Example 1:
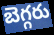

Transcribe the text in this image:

బెగ్గరు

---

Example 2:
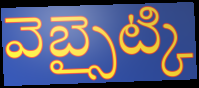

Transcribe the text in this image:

వెబ్సైట్కి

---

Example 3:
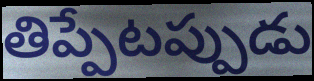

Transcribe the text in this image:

తిప్పేటప్పుడు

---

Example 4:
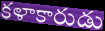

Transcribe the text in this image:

కళాకారుడు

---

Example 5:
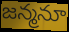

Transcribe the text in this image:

జన్మనూ